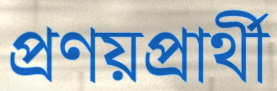
প্ৰণয়প্ৰাৰ্থী